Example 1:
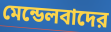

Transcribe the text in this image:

মেন্ডেলবাদের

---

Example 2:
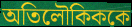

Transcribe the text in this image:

অতিলৌকিককে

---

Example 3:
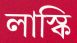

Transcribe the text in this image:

লাস্কি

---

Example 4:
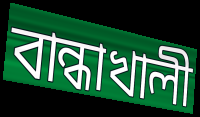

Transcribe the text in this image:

বান্ধাখালী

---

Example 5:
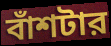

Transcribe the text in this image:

বাঁশটার